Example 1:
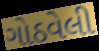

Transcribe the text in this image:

ગોઠવેલી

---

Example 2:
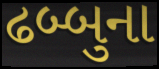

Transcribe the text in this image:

ઢબ્બુના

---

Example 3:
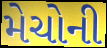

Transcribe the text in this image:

મેચોની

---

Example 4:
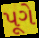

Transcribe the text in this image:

પૂગે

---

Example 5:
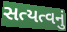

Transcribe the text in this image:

સત્યત્વનું